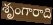
శృంగారాది